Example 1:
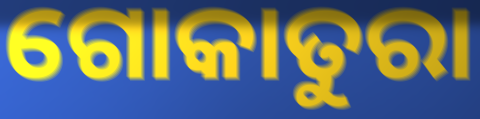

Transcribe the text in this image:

ଗୋକାତୁରା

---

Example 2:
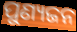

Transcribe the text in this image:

ପୁଣ୍ୟଜନ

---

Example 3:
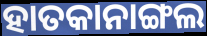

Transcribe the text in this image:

ହାତକାନାଙ୍ଗଲ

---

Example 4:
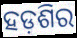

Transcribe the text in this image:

ହଡ଼ଶିର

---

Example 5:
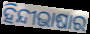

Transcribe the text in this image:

ହିନ୍ଦୀଭାଷାର